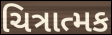
ચિત્રાત્મક